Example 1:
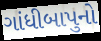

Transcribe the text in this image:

ગાંધીબાપુનો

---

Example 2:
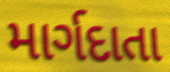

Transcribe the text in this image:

માર્ગદાતા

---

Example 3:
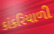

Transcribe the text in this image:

કાંકરિયાળી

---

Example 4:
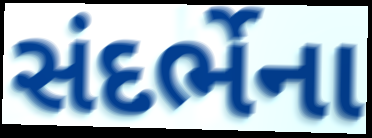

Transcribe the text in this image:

સંદર્ભેના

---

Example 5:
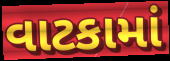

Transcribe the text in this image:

વાટકામાં